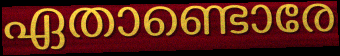
ഏതാണ്ടൊരേ